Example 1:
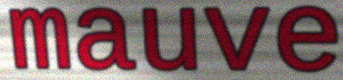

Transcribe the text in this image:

mauve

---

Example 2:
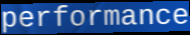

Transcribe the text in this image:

performance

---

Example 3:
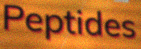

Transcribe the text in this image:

Peptides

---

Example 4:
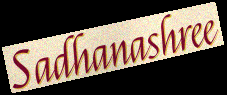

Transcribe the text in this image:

Sadhanashree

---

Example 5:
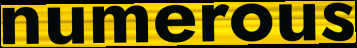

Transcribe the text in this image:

numerous